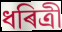
ধৰিত্ৰী